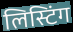
लिस्‍टिंग